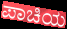
ಪಾಚಿಯ